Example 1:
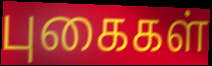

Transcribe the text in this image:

புகைகள்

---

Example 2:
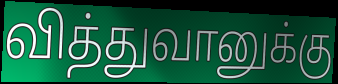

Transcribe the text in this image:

வித்துவானுக்கு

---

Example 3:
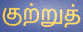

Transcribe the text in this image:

குற்றுத்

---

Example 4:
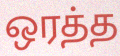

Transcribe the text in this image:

ஒரத்த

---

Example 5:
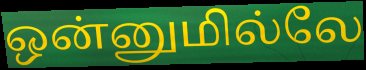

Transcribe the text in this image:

ஒன்னுமில்லே